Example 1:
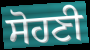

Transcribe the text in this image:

ਸੋਹਣੀ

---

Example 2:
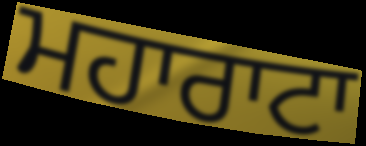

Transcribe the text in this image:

ਮਹਾਰਾਟਾ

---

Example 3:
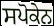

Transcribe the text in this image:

ਸਪੋਕੇਨ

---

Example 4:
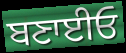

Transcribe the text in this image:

ਬਣਾਈਓ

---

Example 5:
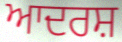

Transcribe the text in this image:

ਆਦਰਸ਼